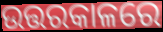
ଉତ୍ତରକାଳରେ